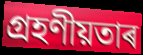
গ্ৰহণীয়তাৰ